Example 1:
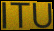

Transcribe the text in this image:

ITU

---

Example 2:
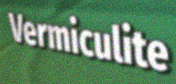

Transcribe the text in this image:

Vermiculite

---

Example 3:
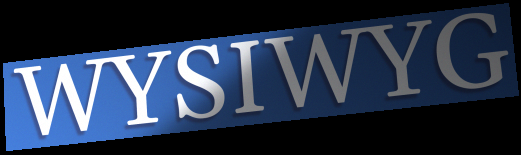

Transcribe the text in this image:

WYSIWYG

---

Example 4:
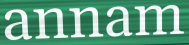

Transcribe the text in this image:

annam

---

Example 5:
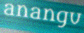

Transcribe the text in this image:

anangu